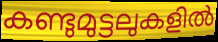
കണ്ടുമുട്ടലുകളിൽ